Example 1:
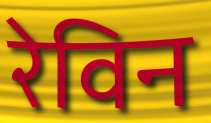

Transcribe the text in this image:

रेविन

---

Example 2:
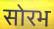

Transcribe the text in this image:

सोरभ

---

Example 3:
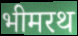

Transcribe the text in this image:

भीमरथ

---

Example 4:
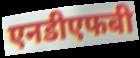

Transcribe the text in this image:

एनडीएफबी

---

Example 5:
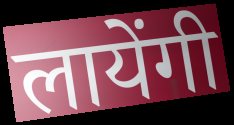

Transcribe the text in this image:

लायेंगी